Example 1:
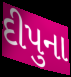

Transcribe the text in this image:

દીપુના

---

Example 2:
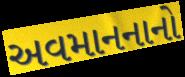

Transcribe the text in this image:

અવમાનનાનો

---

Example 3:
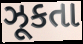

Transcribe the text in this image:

ઝૂકતા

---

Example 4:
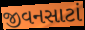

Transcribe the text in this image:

જીવનસાટાં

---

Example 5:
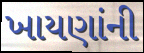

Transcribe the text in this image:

ખાયણાંની